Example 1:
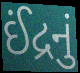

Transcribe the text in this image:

ઈંદ્રનું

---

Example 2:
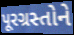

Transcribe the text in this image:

પૂરગ્રસ્તોને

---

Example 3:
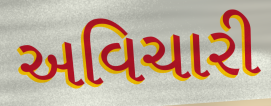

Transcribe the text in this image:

અવિચારી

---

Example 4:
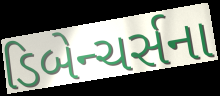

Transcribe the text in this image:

ડિબેન્ચર્સના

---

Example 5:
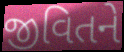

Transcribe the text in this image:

જીવિતને